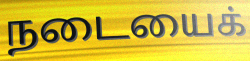
நடையைக்